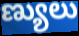
ణ్యులు